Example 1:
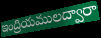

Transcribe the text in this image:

ఇంద్రియములద్వారా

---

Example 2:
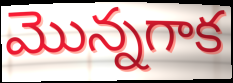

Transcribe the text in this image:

మొన్నగాక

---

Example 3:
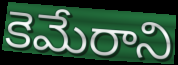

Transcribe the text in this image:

కెమేరాని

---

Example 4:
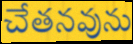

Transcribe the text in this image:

చేతనవును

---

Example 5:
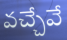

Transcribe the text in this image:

వచ్చేవే